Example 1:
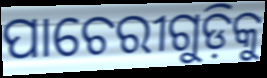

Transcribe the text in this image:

ପାଚେରୀଗୁଡ଼ିକୁ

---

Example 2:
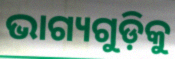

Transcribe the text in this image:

ଭାଗ୍ୟଗୁଡ଼ିକୁ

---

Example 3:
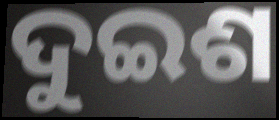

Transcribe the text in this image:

ଦୁଇଶ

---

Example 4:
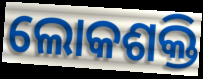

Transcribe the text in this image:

ଲୋକଶକ୍ତି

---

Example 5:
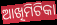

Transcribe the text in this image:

ଆଖିମିଟିକା